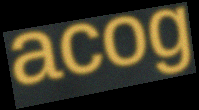
acog